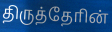
திருத்தேரின்